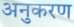
अनुकरण